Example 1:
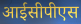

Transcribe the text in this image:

आईसीपीएस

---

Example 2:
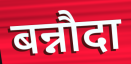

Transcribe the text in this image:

बन्नौदा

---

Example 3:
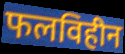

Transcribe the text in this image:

फलविहीन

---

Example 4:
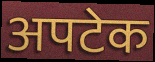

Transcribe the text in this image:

अपटेक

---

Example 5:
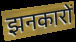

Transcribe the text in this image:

झनकारों